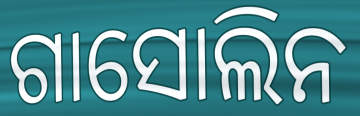
ଗାସୋଲିନ